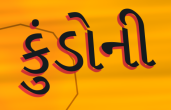
કુંડોની